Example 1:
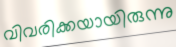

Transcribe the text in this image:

വിവരിക്കയായിരുന്നു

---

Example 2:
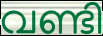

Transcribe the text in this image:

വണ്ടി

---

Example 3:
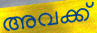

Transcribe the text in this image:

അവക്ക്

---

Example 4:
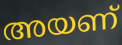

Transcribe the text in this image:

അയണ്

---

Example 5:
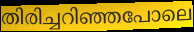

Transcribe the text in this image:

തിരിച്ചറിഞ്ഞപോലെ